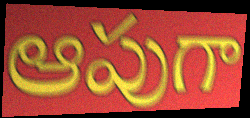
ఆపుగా